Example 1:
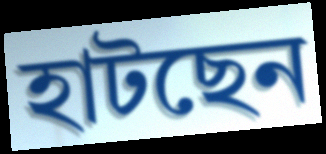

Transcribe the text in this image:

হাটছেন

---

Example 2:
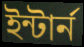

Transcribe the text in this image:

ইন্টার্ন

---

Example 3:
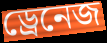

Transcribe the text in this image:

ড্রেনেজ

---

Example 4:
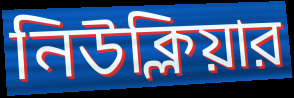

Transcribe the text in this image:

নিউক্লিয়ার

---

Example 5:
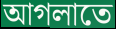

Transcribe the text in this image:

আগলাতে